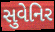
સુવેનિર